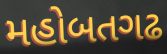
મહોબતગઢ